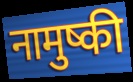
नामुष्की